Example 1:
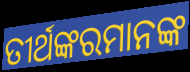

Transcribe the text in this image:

ତୀର୍ଥଙ୍କରମାନଙ୍କ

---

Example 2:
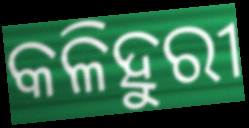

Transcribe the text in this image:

କଳିହୁରୀ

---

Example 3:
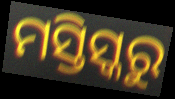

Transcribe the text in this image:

ମସ୍ତିସ୍କରୁ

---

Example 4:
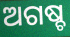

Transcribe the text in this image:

ଅଗଷ୍ଚ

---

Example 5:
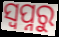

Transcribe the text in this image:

ସ୍ୱପ୍ନରୁ